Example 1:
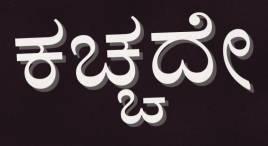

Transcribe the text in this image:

ಕಚ್ಚದೇ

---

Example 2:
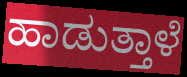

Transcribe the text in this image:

ಹಾಡುತ್ತಾಳೆ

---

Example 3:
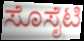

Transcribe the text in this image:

ಸೊಸೈಟಿ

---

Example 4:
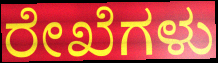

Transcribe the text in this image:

ರೇಖೆಗಳು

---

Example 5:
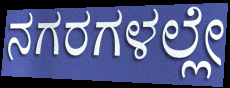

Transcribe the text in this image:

ನಗರಗಳಲ್ಲೇ